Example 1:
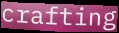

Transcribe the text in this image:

crafting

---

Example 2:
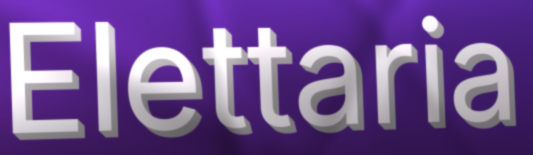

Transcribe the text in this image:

Elettaria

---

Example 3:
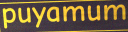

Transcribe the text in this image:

puyamum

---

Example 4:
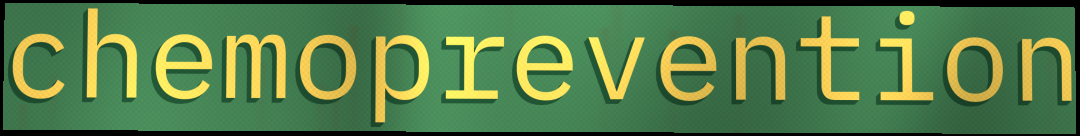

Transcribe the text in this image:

chemoprevention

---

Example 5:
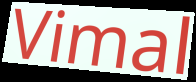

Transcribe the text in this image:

Vimal